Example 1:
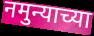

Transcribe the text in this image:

नमुन्याच्या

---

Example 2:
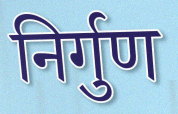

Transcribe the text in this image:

निर्गुण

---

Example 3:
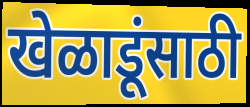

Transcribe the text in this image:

खेळाडूंसाठी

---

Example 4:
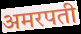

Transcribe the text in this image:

अमरपती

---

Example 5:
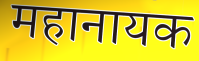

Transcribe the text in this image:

महानायक